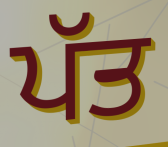
ਪੱਤ